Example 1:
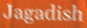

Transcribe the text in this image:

Jagadish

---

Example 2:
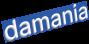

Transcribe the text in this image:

damania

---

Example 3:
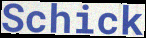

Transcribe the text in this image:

Schick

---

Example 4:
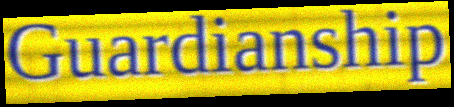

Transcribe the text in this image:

Guardianship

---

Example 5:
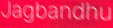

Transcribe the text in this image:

Jagbandhu